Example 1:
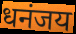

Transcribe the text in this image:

धनंजय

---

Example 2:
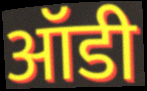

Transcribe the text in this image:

ऑडी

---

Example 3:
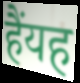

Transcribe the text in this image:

हैंयह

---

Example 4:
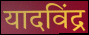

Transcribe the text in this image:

यादविंद्र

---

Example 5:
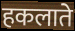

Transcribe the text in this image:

हकलाते